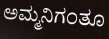
ಅಮ್ಮನಿಗಂತೂ